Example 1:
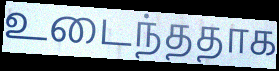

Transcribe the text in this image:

உடைந்ததாக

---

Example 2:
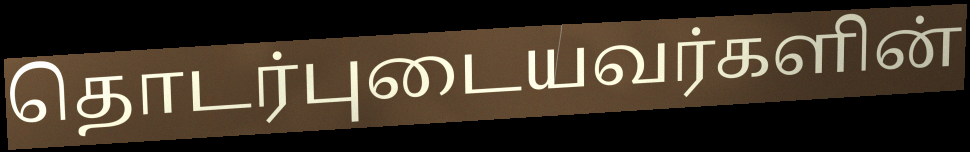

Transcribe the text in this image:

தொடர்புடையவர்களின்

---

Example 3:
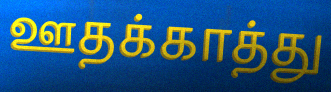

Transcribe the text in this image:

ஊதக்காத்து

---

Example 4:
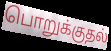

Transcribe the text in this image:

பொறுக்குதல்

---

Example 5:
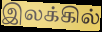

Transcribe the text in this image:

இலக்கில்